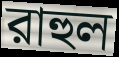
রাহুল